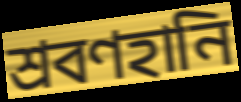
শ্রবণহানি